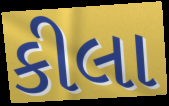
કીલા